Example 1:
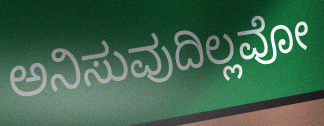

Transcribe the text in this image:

ಅನಿಸುವುದಿಲ್ಲವೋ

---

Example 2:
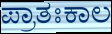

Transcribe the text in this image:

ಪ್ರಾತಃಕಾಲ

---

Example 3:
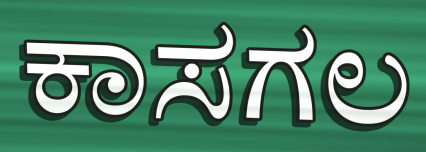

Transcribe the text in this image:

ಕಾಸಗಲ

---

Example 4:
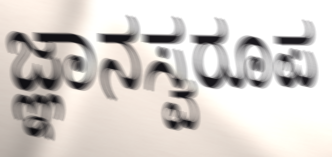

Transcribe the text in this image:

ಜ್ಞಾನಸ್ವರೂಪ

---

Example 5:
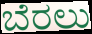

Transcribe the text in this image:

ಬೆರಲು